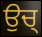
ਉਚ੍